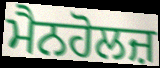
ਮੈਨਹੋਲਜ਼